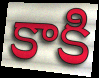
కాకి